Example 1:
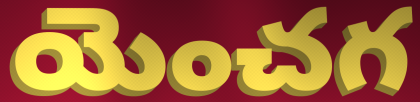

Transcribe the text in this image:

యెంచగ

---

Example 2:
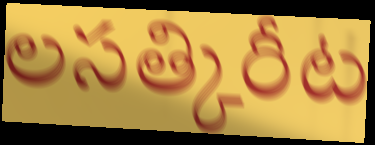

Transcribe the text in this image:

లసత్కిరీట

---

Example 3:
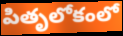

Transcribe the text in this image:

పితృలోకంలో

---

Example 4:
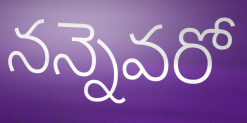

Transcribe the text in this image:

నన్నెవరో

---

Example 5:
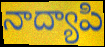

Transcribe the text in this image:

నాద్యాపి